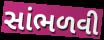
સાંભળવી